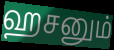
ஹசனும்